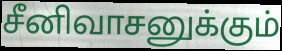
சீனிவாசனுக்கும்